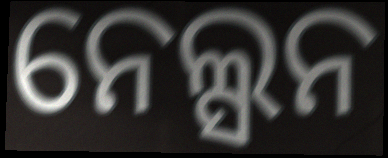
ନେଲ୍ସନ